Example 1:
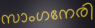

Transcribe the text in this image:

സാംഗനേരി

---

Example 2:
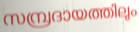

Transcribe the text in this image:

സമ്പ്രദായത്തിലും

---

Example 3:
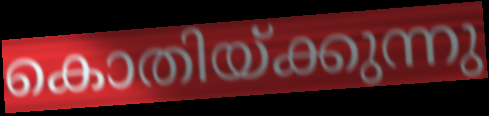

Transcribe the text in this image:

കൊതിയ്ക്കുന്നു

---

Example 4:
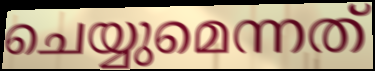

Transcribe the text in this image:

ചെയ്യുമെന്നത്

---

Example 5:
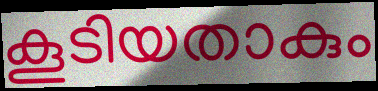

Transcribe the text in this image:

കൂടിയതാകും